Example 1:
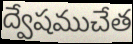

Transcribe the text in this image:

ద్వేషముచేత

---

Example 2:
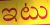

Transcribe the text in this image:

ఇటు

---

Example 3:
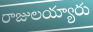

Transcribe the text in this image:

రాజులయ్యారు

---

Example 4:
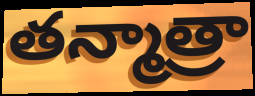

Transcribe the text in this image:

తన్మాత్రా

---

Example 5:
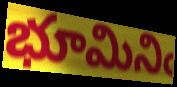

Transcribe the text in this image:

భూమినిఁ